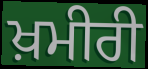
ਖ਼ਮੀਰੀ